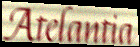
Atelantia